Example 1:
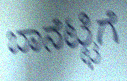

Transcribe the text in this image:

ಬಾನೆಟ್ಟಿಗೆ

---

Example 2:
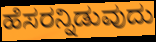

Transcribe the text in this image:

ಹೆಸರನ್ನಿಡುವುದು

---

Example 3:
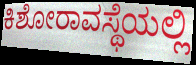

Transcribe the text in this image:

ಕಿಶೋರಾವಸ್ಥೆಯಲ್ಲಿ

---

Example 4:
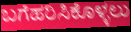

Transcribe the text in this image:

ಬಗೆಹರಿಸಿಕೊಳ್ಳಲು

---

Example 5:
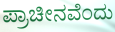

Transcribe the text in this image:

ಪ್ರಾಚೀನವೆಂದು